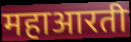
महाआरती